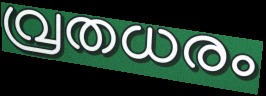
വ്രതധരം